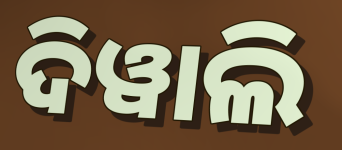
ଦିୱାଲି